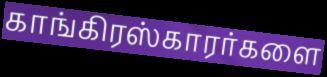
காங்கிரஸ்காரர்களை